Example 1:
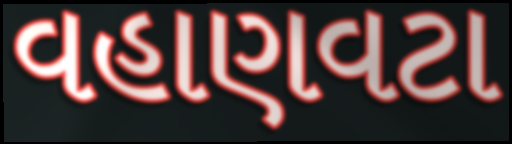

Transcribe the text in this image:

વહાણવટા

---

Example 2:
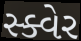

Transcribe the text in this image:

સ્ક્વેર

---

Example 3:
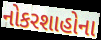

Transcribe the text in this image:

નોકરશાહોના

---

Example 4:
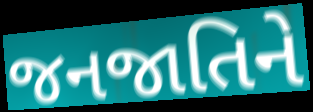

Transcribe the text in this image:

જનજાતિને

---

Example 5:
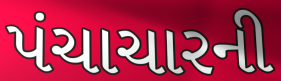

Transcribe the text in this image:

પંચાચારની